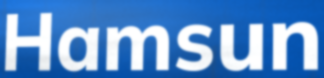
Hamsun